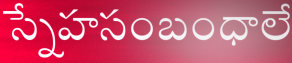
స్నేహసంబంధాలే